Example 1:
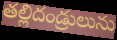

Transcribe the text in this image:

తల్లిదండ్రులును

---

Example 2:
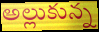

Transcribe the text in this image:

అల్లుకున్న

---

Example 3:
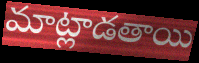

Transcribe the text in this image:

మాట్లాడతాయి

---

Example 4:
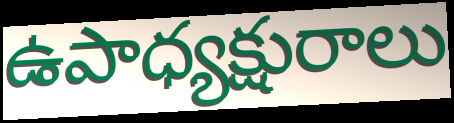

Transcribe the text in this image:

ఉపాధ్యక్షురాలు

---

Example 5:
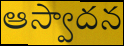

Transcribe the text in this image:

ఆస్వాదన